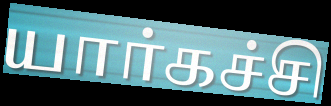
யார்கச்சி